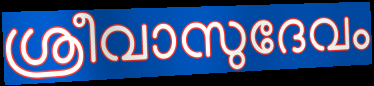
ശ്രീവാസുദേവം